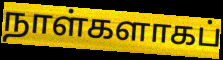
நாள்களாகப்